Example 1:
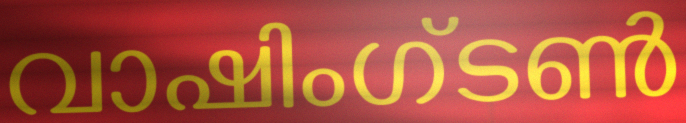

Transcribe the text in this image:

വാഷിംഗ്ടൺ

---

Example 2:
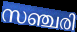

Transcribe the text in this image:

സഞ്ചരി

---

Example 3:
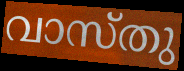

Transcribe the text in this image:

വാസ്തു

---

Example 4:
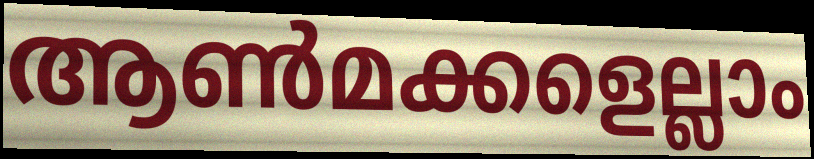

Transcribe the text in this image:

ആൺമക്കളെല്ലാം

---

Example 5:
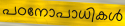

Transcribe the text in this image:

പഠനോപാധികൾ